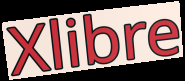
Xlibre